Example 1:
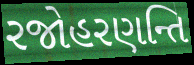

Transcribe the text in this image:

રજોહરણન્તિ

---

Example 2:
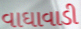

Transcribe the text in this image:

વાઘાવાડી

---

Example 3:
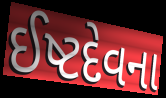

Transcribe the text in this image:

ઈષ્ટદેવના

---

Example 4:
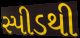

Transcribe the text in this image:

સ્પીડથી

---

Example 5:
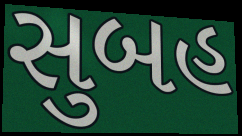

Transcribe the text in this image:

સુબહ